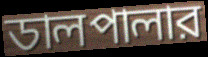
ডালপালার